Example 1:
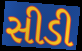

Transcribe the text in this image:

સીડી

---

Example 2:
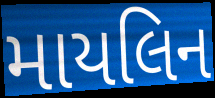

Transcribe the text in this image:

માયલિન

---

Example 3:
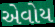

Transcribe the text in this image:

એવોય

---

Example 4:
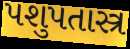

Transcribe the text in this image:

પશુપતાસ્ત્ર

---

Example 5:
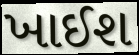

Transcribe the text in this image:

ખાઈશ